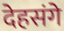
देहसंगे